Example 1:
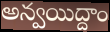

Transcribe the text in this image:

అన్వయిద్దాం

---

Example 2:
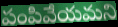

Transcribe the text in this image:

పంపివేయమని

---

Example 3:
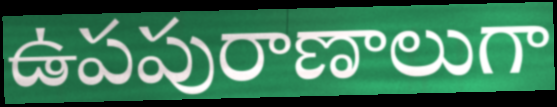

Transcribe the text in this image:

ఉపపురాణాలుగా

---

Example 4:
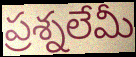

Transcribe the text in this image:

ప్రశ్నలేమీ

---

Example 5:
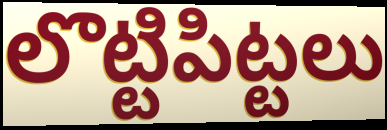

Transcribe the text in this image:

లొట్టిపిట్టలు